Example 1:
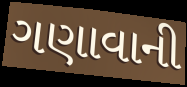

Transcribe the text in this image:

ગણાવાની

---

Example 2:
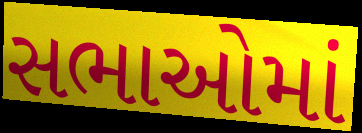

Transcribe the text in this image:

સભાઓમાં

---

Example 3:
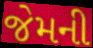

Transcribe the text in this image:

જેમની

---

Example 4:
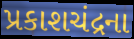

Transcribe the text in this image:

પ્રકાશચંદ્રના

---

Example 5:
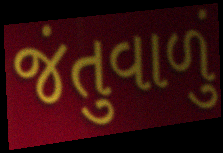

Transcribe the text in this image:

જંતુવાળું